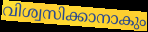
വിശ്വസിക്കാനാകും